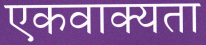
एकवाक्यता